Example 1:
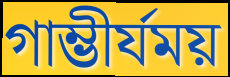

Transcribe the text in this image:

গাম্ভীর্যময়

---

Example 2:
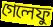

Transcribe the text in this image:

গেলেফু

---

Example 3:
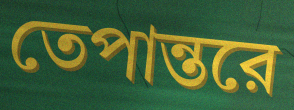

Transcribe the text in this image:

তেপান্তরে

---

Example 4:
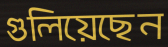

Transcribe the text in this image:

গুলিয়েছেন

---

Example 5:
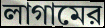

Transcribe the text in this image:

লাগামের